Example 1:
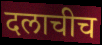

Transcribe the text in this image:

दलाचीच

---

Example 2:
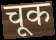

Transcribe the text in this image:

चूक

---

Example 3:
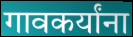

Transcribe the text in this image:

गावकर्यांना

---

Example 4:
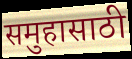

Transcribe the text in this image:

समुहासाठी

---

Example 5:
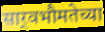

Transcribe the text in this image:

सार्वभौमतेच्या